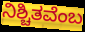
ನಿಶ್ಚಿತವೆಂಬ